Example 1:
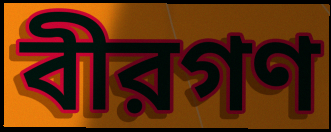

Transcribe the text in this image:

বীরগণ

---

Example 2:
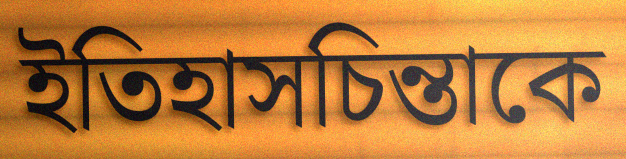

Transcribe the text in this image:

ইতিহাসচিন্তাকে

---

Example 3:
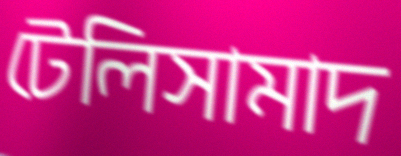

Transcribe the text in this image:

টেলিসামাদ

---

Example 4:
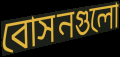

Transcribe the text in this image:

বোসনগুলো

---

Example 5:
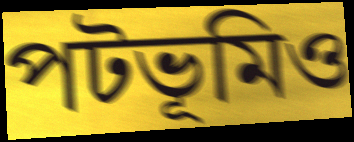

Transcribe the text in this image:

পটভূমিও